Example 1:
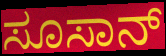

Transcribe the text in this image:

ಸೂಸಾನ್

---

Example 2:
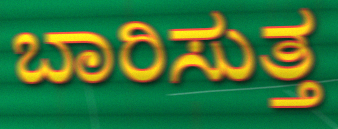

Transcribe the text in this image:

ಬಾರಿಸುತ್ತ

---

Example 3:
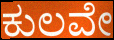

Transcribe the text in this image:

ಕುಲವೇ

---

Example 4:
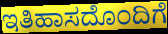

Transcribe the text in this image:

ಇತಿಹಾಸದೊಂದಿಗೆ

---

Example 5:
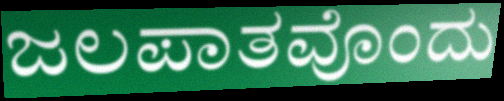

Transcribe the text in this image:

ಜಲಪಾತವೊಂದು